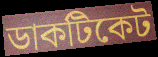
ডাকটিকেট